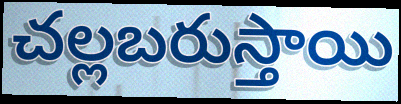
చల్లబరుస్తాయి